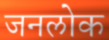
जनलोक